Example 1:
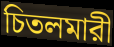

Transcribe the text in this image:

চিতলমারী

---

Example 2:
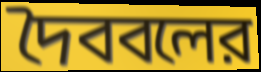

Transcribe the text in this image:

দৈববলের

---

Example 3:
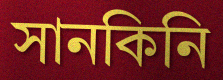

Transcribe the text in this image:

সানকিনি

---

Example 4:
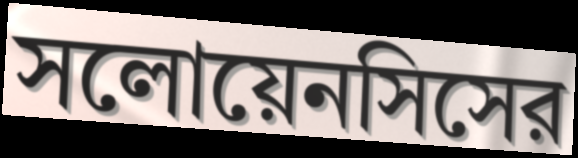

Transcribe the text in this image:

সলোয়েনসিসের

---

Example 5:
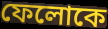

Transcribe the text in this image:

ফেলোকে